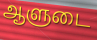
ஆளுடை